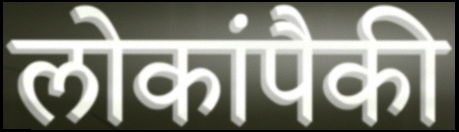
लोकांपैकी